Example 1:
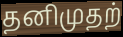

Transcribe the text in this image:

தனிமுதற்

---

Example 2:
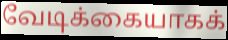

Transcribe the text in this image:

வேடிக்கையாகக்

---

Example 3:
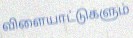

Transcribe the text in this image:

விளையாட்டுகளும்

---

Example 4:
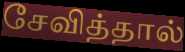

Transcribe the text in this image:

சேவித்தால்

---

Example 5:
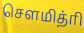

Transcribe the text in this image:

சௌமித்ரி